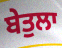
ਬੇਤੁਲਾ